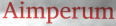
Aimperum